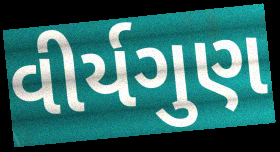
વીર્યગુણ